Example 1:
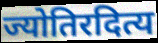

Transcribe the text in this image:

ज्योतिरदित्य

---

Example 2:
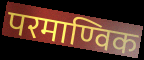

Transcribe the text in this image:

परमाण्विक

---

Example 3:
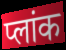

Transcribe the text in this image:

प्लांक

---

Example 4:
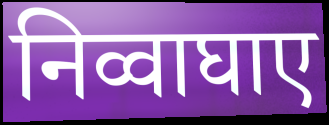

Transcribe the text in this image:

निव्वाघाए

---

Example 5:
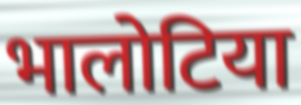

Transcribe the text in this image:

भालोटिया